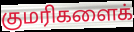
குமரிகளைக்